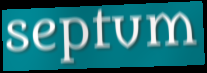
septum